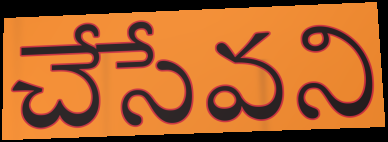
చేసేవని